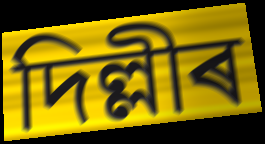
দিল্লীৰ